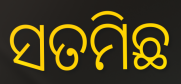
ସତମିଛ